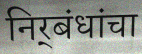
निर्बंधांचा